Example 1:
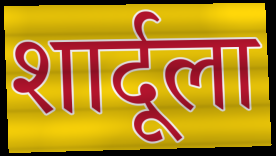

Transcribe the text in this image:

शार्दूला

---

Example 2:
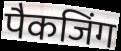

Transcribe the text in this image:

पैकजिंग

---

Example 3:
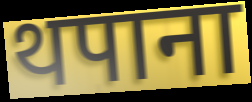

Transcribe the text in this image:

थपाना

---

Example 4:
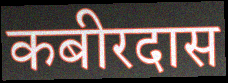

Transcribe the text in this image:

कबीरदास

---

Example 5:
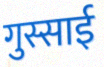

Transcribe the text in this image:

गुस्साई